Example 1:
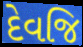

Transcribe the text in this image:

દેવજિ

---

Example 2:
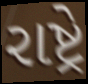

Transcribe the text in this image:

રાષ્ટ્રે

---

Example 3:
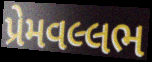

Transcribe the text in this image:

પ્રેમવલ્લભ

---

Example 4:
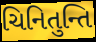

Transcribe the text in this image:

ચિનિતુન્તિ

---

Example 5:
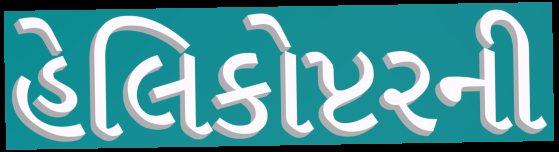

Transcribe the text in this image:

હેલિકોપ્ટરની